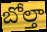
బోల్తా